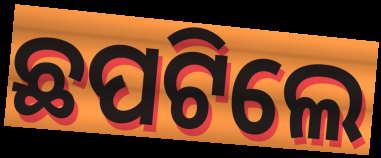
ଛପଟିଲେ